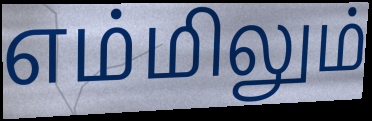
எம்மிலும்